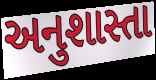
અનુશાસ્તા